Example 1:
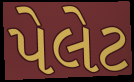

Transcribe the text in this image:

પેલેટ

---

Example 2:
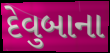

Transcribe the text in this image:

દેવુબાના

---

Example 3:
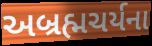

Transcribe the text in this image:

અબ્રહ્મચર્યના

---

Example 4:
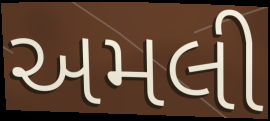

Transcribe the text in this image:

અમલી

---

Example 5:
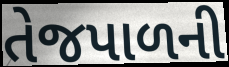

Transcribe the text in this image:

તેજપાળની